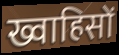
ख्वाहिसों